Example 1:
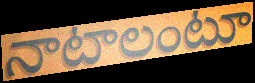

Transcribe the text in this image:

నాటాలంటూ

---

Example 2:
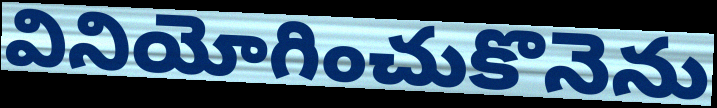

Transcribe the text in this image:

వినియోగించుకొనెను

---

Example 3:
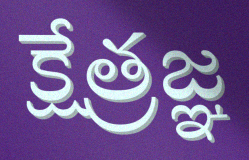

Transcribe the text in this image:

క్షేత్రజ్ఞ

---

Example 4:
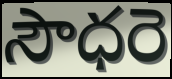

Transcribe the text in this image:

సౌధరె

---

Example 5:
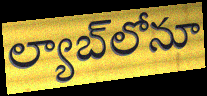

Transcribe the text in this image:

ల్యాబ్‌లోనూ